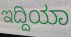
ಇದ್ದಿಯಾ